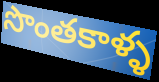
సొంతకాళ్ళ